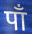
पाँ